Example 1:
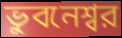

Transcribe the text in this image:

ভুবনেশ্বর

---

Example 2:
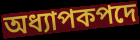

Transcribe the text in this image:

অধ্যাপকপদে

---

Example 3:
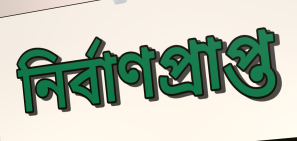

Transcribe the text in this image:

নির্বাণপ্রাপ্ত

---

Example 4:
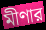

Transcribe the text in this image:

মীণার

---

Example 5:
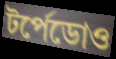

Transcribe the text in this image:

টর্পেডোও